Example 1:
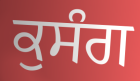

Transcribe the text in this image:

ਕੁਸੰਗ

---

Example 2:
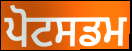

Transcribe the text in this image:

ਪੋਟਸਡਮ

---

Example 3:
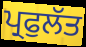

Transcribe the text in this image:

ਪ੍ਰਫੁਲੱਤ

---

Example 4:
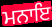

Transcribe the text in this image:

ਮਨਾਇ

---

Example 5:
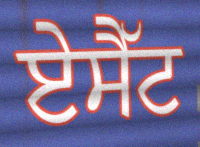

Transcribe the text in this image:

ਏਸੈੱਟ